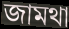
জামথা